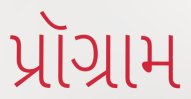
પ્રૉગ્રામ